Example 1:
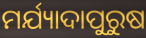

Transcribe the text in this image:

ମର୍ଯ୍ୟାଦାପୁରୁଷ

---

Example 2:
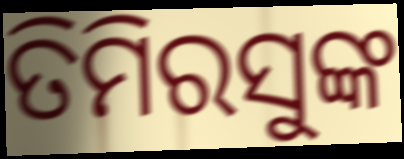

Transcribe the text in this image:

ତିମିରସୁଙ୍କ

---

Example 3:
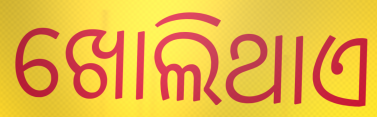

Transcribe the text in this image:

ଖୋଲିଥାଏ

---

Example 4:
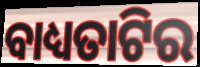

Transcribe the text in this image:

ବାଧ୍ୟତାଟିର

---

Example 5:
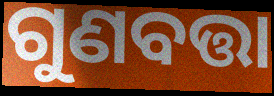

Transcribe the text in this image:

ଗୁଣବତ୍ତା